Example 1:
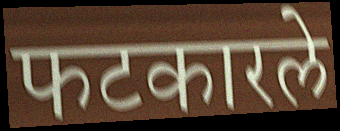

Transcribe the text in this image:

फटकारले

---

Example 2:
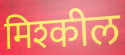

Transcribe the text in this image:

मिश्कील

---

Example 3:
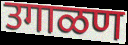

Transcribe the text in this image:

उगाळण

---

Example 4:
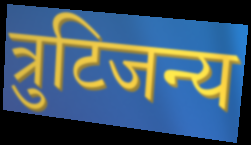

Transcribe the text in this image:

त्रुटिजन्य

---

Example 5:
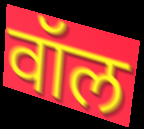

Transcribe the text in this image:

वॉल